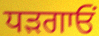
ਧੜਗਾਓਂ